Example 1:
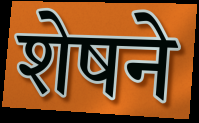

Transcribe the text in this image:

शेषने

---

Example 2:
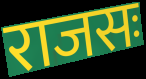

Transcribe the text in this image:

राजसः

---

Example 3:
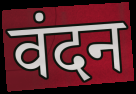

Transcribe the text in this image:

वंदन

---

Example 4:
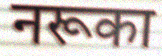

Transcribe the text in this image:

नरूका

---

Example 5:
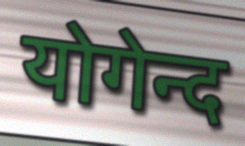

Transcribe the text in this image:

योगेन्द